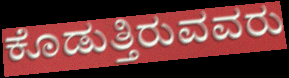
ಕೊಡುತ್ತಿರುವವರು